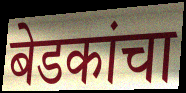
बेडकांचा